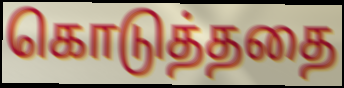
கொடுத்ததை